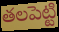
తలపెట్టి